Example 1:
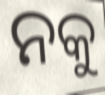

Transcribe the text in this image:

ନକୁ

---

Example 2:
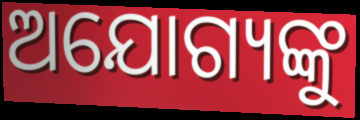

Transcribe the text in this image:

ଅଯୋଗ୍ୟଙ୍କୁ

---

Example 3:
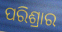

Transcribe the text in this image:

ପରିଶ୍ରାର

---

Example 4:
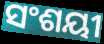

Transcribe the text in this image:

ସଂଶୟୀ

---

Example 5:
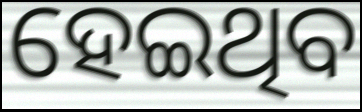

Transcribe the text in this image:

ହେଇଥିବ